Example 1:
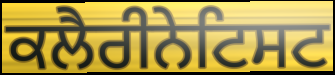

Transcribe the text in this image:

ਕਲੈਰੀਨੇਟਿਸਟ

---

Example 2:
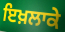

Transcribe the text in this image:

ਇਖ਼ਲਾਕੇ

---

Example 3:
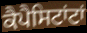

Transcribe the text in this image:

ਕੈਪੈਸਿਟਾਂਟਾਂ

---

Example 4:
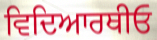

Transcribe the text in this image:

ਵਿਦਿਆਰਥੀਓ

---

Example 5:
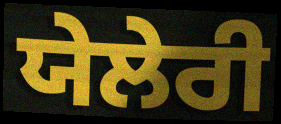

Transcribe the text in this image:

ਯੇਲੇਰੀ